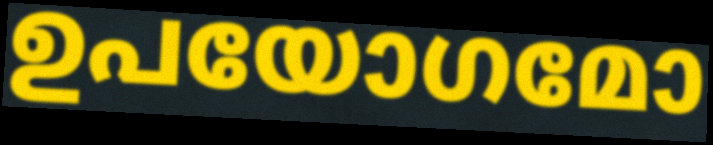
ഉപയോഗമോ